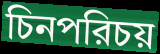
চিনপরিচয়